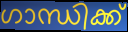
ഗാന്ധിക്ക്